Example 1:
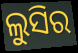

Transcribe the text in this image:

ଲୁସିର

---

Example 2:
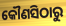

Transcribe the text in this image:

କୌଣସିଠାରୁ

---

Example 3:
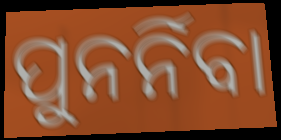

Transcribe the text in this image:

ପୁନର୍ନିବା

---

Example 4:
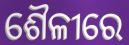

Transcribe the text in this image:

ଶୈଳୀରେ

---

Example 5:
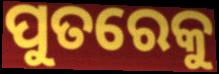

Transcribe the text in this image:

ପୁତରେକୁ